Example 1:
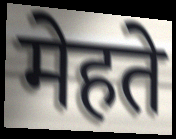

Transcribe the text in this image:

मेहते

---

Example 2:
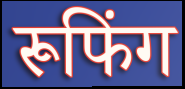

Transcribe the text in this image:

रूफिंग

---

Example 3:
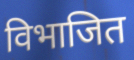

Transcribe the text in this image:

विभाजित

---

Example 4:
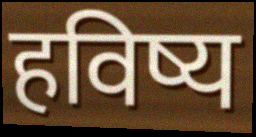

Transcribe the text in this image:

हविष्य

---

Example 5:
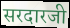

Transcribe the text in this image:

सरदारजी